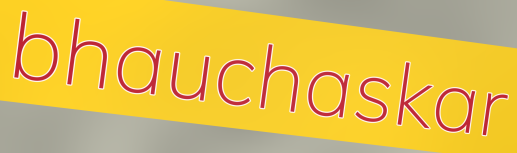
bhauchaskar